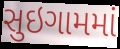
સુઇગામમાં